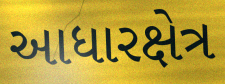
આધારક્ષેત્ર